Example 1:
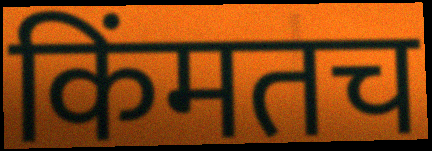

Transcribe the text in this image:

किंमतच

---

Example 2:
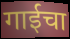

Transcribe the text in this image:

गाईचा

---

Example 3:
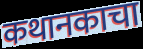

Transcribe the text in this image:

कथानकाचा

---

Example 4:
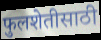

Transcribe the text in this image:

फुलशेतीसाठी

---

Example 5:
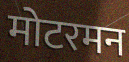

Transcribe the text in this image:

मोटरमन